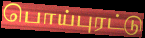
பொய்புரட்டு